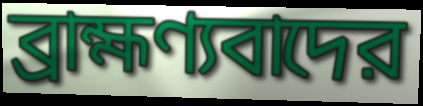
ব্রাহ্মণ্যবাদের